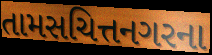
તામસચિત્તનગરના